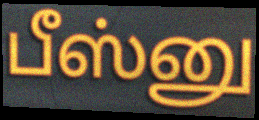
பீஸ்னு